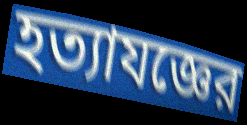
হত্যাযজ্ঞের